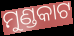
ମୁଣ୍ଡକାଟ